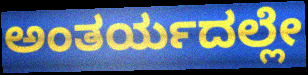
ಅಂತರ್ಯದಲ್ಲೇ